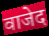
वाजेद